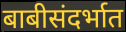
बाबीसंदर्भात